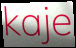
kaje